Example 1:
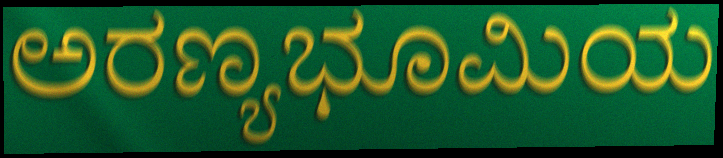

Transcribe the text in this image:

ಅರಣ್ಯಭೂಮಿಯ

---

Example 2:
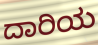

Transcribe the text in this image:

ದಾರಿಯ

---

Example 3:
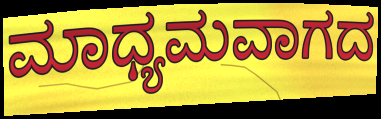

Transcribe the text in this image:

ಮಾಧ್ಯಮವಾಗದ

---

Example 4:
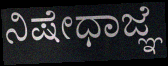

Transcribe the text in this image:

ನಿಷೇಧಾಜ್ಞೆ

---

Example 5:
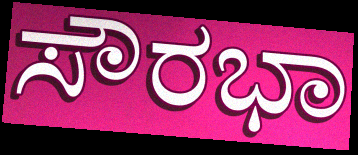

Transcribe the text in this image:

ಸೌರಭಾ